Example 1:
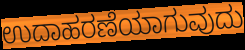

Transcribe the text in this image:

ಉದಾಹರಣೆಯಾಗುವುದು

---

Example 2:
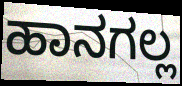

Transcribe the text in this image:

ಹಾನಗಲ್ಲ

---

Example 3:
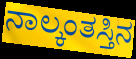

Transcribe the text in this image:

ನಾಲ್ಕಂತಸ್ತಿನ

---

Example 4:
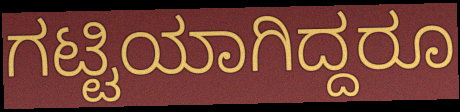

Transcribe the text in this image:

ಗಟ್ಟಿಯಾಗಿದ್ದರೂ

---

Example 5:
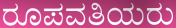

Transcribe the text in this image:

ರೂಪವತಿಯರು